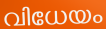
വിധേയം